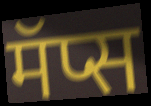
मॅप्स